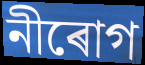
নীৰোগ